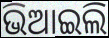
ଭିଆଇଲି